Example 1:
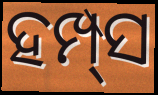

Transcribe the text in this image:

ହମ୍ପ୍‌ସ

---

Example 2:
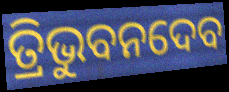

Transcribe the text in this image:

ତ୍ରିଭୁବନଦେବ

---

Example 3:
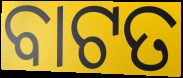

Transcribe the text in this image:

ବାଟତ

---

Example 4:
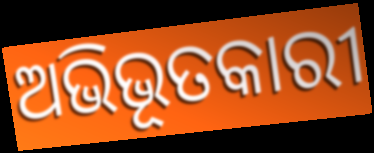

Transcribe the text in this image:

ଅଭିଭୂତକାରୀ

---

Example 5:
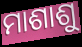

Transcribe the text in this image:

ମାଶାଶୁ